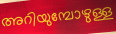
അറിയുമ്പോഴുള്ള